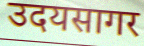
उदयसागर